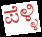
ಪೆಳ್ಳಿ